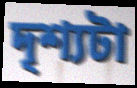
দৃশ্যটা